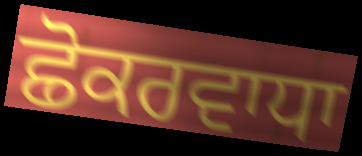
ਛੋਕਰਵਾਧਾ